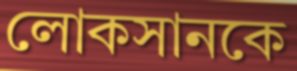
লোকসানকে